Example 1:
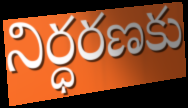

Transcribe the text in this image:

నిర్ధరణకు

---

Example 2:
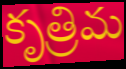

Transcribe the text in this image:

కృత్రిమ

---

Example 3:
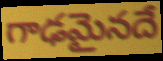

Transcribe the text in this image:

గాఢమైనదే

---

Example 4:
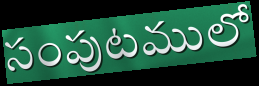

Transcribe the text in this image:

సంపుటములో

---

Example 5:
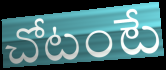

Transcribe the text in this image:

చోటంటే